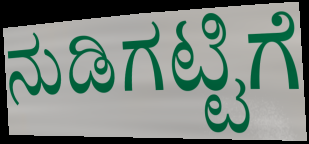
ನುಡಿಗಟ್ಟಿಗೆ